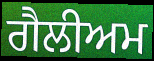
ਗੈਲੀਅਮ